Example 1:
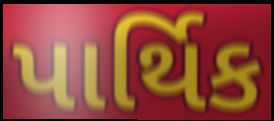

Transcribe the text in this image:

પાર્થિક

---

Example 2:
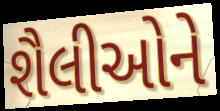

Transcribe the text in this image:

શૈલીઓને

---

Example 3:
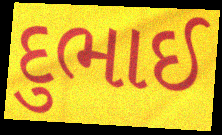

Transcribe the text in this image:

દુભાઈ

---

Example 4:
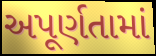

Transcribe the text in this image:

અપૂર્ણતામાં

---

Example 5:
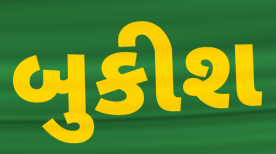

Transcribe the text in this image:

બુકીશ